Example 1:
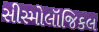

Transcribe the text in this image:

સીસ્મોલૉજિકલ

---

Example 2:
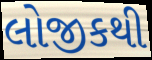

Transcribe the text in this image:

લોજીકથી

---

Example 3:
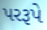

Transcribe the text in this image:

પરરૂપે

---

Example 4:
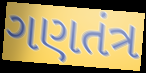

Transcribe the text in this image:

ગણતંત્ર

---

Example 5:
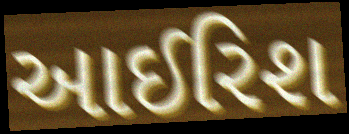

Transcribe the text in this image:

આઈરિશ